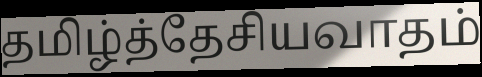
தமிழ்த்தேசியவாதம்